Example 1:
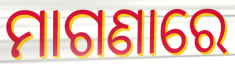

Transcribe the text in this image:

ମାଗଣାରେ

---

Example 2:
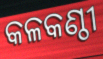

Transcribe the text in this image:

କଳକଣ୍ଠୀ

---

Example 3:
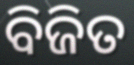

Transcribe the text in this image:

ବିଜିତ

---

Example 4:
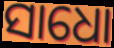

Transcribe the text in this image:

ସାଧୋ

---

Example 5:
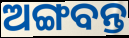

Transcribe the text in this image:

ଅଙ୍ଗବନ୍ତ